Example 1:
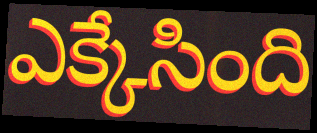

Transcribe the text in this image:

ఎక్కేసింది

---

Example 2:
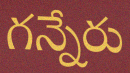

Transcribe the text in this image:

గన్నేరు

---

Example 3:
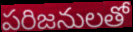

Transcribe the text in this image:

పరిజనులతో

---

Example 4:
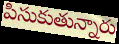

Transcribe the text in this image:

పిసుకుతున్నారు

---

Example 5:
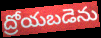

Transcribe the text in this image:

ద్రోయబడెను